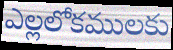
ఎల్లలోకములకు